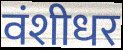
वंशीधर